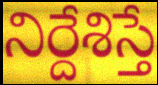
నిర్దేశిస్తే